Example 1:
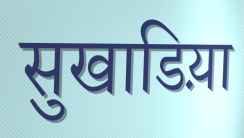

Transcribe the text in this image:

सुखाडिय़ा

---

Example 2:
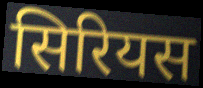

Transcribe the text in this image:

सिरियस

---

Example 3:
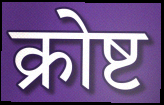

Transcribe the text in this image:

क्रोष्ट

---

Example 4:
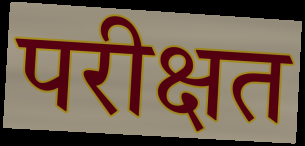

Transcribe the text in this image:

परीक्षत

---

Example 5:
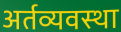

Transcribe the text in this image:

अर्तव्यवस्था